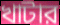
খাটার